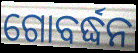
ଗୋବର୍ଦ୍ଧନ